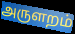
அருளறம்